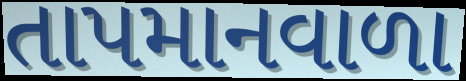
તાપમાનવાળા